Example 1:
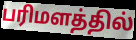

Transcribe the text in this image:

பரிமளத்தில்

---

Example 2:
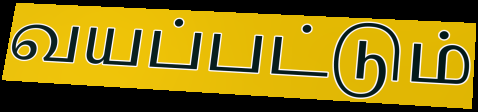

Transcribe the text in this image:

வயப்பட்டும்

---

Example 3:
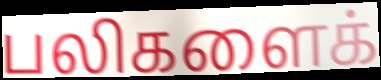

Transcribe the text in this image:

பலிகளைக்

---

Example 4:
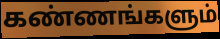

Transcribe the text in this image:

கண்ணங்களும்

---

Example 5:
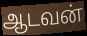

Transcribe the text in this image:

ஆடவன்